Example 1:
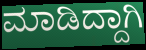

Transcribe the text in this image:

ಮಾಡಿದ್ದಾಗಿ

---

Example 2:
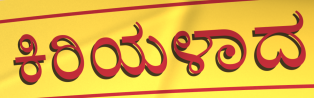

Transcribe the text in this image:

ಕಿರಿಯಳಾದ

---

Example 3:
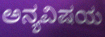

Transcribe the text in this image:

ಅನ್ಯವಿಷಯ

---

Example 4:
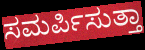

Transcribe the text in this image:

ಸಮರ್ಪಿಸುತ್ತಾ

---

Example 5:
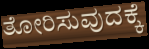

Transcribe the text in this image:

ತೋರಿಸುವುದಕ್ಕೆ